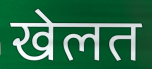
खेलत